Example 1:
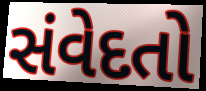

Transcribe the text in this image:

સંવેદતો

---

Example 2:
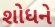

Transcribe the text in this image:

શોધને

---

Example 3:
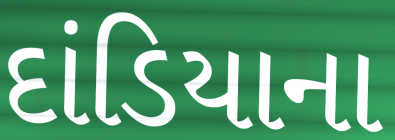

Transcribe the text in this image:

દાંડિયાના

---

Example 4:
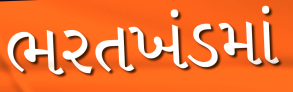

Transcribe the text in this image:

ભરતખંડમાં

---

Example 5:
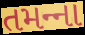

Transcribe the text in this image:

તમન્‍ના